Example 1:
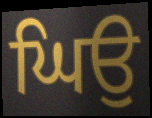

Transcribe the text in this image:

ਘਿਉ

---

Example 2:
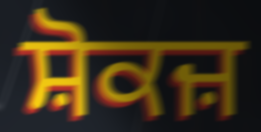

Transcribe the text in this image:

ਸ਼ੋਕਜ਼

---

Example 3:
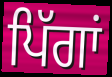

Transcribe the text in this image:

ਪਿੱਗਾਂ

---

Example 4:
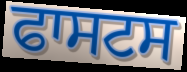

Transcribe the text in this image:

ਫਾਸਟਸ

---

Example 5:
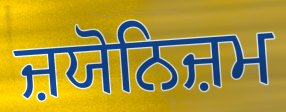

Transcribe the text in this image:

ਜ਼ਯੋਨਿਜ਼ਮ